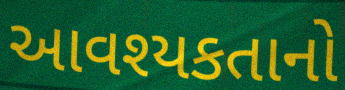
આવશ્યકતાનો